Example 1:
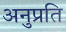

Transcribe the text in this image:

अनुप्रति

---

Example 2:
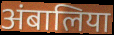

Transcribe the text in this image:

अंबालिया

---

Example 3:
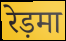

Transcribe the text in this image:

रेड़मा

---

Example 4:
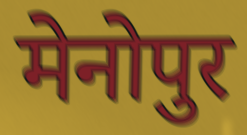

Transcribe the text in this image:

मेनोपुर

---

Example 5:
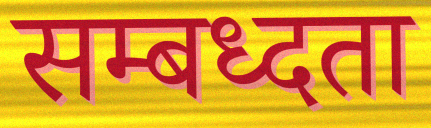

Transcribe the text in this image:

सम्बध्दता